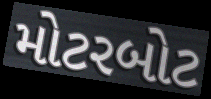
મોટરબોટ